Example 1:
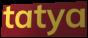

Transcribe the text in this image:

tatya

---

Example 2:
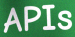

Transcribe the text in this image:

APIs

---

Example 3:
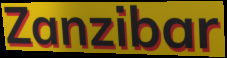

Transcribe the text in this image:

Zanzibar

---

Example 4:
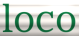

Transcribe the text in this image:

loco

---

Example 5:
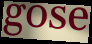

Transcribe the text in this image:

gose